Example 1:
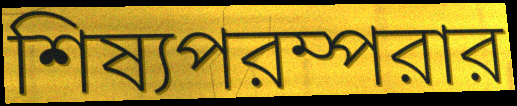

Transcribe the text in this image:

শিষ্যপরম্পরার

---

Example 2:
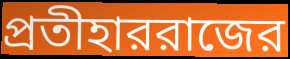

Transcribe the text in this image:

প্রতীহাররাজের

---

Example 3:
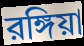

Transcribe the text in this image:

রঙ্গিয়া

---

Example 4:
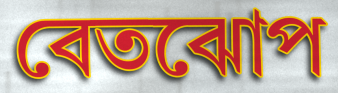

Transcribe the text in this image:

বেতঝোপ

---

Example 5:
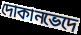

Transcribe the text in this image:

দোকানভেদে